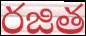
రజిత